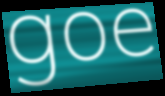
goe